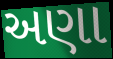
અણા